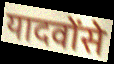
यादवोंसे